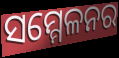
ସମ୍ମେଳନର